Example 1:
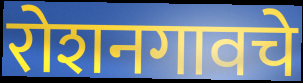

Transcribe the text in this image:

रोशनगावचे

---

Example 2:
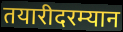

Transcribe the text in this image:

तयारीदरम्यान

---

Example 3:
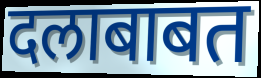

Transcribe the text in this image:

दलाबाबत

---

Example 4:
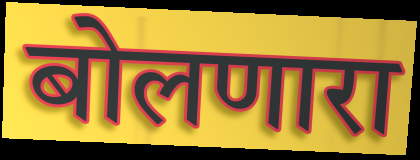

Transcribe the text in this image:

बोलणारा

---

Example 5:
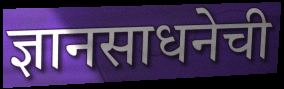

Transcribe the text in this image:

ज्ञानसाधनेची